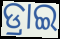
ଡ୍ରାଇ